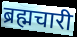
ब्रह्मचारी